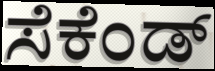
ಸೆಕೆಂಡ್